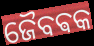
ଜୈବଵକ